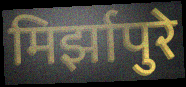
मिर्झापुरे